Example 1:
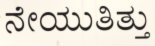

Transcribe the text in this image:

ನೇಯುತಿತ್ತು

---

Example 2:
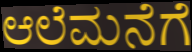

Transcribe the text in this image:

ಆಲೆಮನೆಗೆ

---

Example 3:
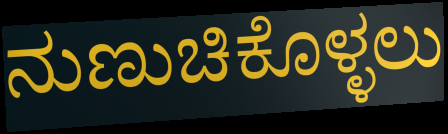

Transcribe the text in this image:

ನುಣುಚಿಕೊಳ್ಳಲು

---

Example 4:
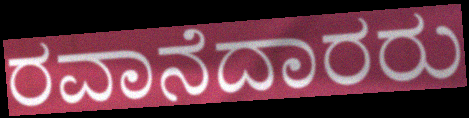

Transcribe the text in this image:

ರವಾನೆದಾರರು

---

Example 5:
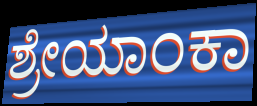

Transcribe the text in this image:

ಶ್ರೇಯಾಂಕಾ